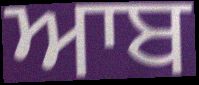
ਆਬ